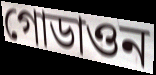
গোডাওন